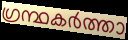
ഗ്രന്ഥകർത്താ